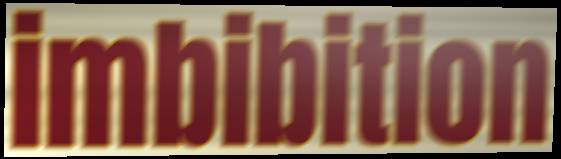
imbibition